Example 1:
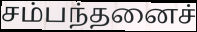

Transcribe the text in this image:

சம்பந்தனைச்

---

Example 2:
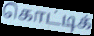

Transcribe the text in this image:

கொட்டிக்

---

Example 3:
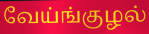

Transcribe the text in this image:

வேய்ங்குழல்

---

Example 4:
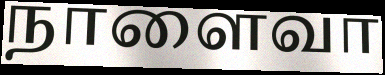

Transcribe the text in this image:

நாளைவா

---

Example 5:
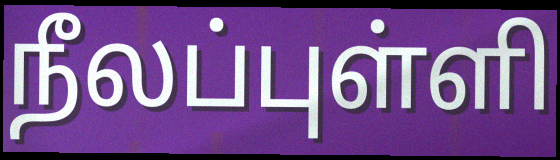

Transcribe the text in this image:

நீலப்புள்ளி